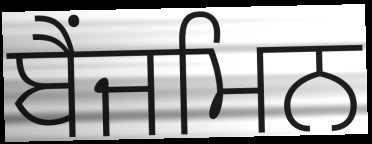
ਬੈਂਜਮਿਨ